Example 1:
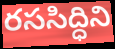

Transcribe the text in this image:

రససిద్ధిని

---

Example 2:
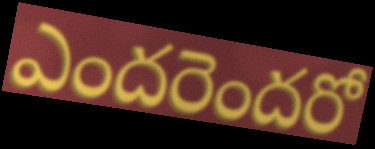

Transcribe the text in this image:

ఎందరెందరో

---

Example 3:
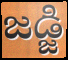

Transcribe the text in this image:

జడ్జి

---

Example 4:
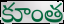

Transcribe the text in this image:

కూంత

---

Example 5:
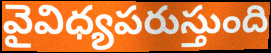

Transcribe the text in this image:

వైవిధ్యపరుస్తుంది